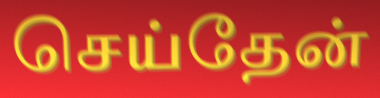
செய்தேன்